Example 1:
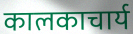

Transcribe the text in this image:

कालकाचार्य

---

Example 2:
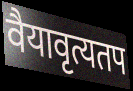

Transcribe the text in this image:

वैयावृत्यतप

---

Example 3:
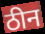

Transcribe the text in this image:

ठीन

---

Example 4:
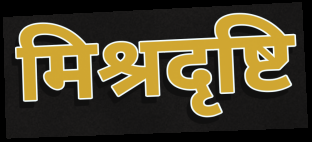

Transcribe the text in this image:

मिश्रदृष्टि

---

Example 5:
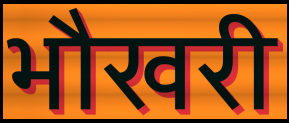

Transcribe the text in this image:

भौखरी